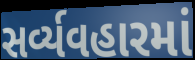
સર્વ્યવહારમાં